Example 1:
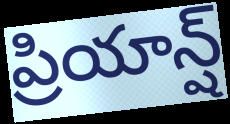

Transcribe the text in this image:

ప్రియాన్ష్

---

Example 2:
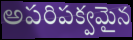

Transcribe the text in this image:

అపరిపక్వమైన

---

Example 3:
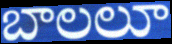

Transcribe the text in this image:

బాలలూ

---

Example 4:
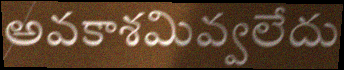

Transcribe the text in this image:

అవకాశమివ్వలేదు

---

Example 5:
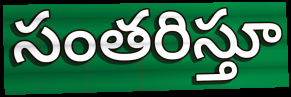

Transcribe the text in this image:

సంతరిస్తూ